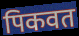
पिकवत